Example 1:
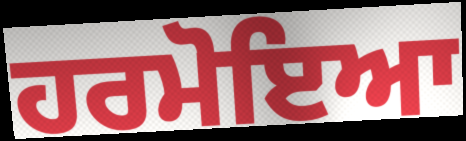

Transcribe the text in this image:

ਹਰਮੋਇਆ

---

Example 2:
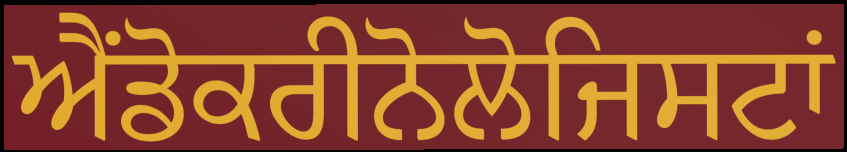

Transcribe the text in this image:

ਐਂਡੋਕਰੀਨੋਲੋਜਿਸਟਾਂ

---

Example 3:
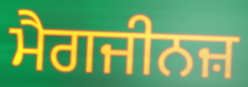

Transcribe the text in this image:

ਮੈਗਜੀਨਜ਼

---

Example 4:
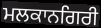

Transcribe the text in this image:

ਮਲਕਾਨਗਿਰੀ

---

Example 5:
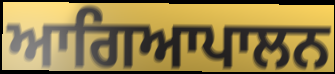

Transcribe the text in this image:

ਆਗਿਆਪਾਲਨ